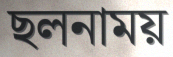
ছলনাময়